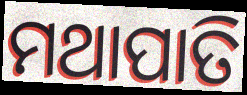
ମଥାପାତି